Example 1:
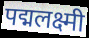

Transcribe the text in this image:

पद्मलक्ष्मी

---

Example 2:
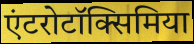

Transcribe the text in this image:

एंटरोटॉक्सिमिया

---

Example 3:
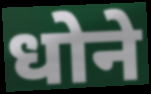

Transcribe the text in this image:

धोने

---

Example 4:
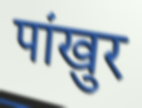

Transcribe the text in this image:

पांखुर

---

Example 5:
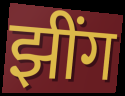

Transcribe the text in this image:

झींग